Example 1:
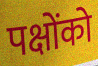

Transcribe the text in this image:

पक्षोंको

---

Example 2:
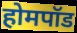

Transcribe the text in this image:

होमपॉड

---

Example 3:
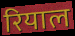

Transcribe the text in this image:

रियाल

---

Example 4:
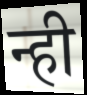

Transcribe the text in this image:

न्ही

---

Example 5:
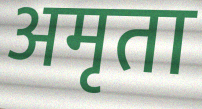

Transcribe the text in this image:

अमृता